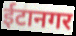
ईटानगर